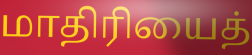
மாதிரியைத்